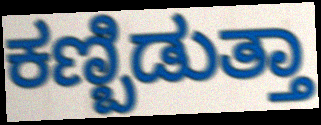
ಕಣ್ಬಿಡುತ್ತಾ